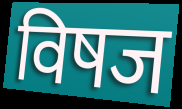
विषज